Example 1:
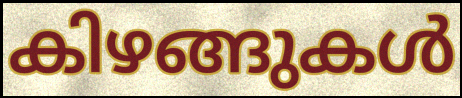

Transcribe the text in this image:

കിഴങ്ങുകൾ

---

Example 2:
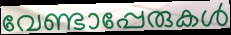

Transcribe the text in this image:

വേണ്ടാപ്പേരുകൾ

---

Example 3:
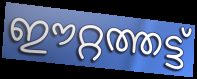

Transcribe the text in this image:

ഈറ്റത്തട്ട്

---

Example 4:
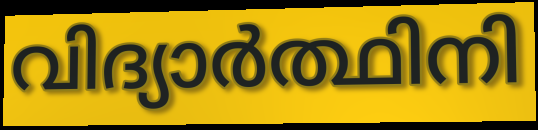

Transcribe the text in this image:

വിദ്യാർത്ഥിനി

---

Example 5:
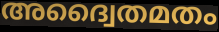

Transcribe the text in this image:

അദ്വൈതമതം